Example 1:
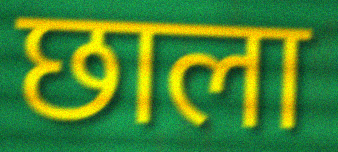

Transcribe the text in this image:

छाला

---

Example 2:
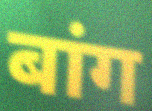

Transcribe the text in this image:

बांग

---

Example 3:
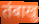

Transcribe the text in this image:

तंबाखु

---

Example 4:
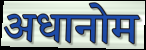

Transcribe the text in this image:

अधानोम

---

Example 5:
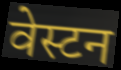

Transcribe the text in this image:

वेस्टन